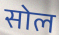
सोल